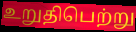
உறுதிபெற்று